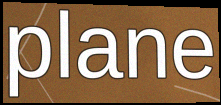
plane